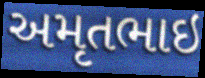
અમૃતભાઇ